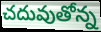
చదువుతోన్న